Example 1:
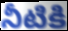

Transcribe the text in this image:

నీటికి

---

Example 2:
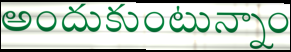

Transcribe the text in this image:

అందుకుంటున్నాం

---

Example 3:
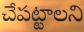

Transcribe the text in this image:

చేపట్టాలని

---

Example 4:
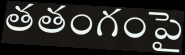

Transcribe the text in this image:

తతంగంపై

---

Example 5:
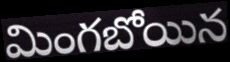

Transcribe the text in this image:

మింగబోయిన